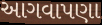
આગવાપણા